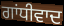
ਗਾਂਧੀਵਾਦ